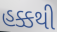
હક્કથી